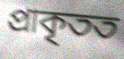
প্ৰাকৃতত